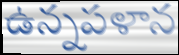
ఉన్నపళాన